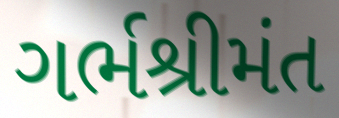
ગર્ભશ્રીમંત